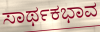
ಸಾರ್ಥಕಭಾವ